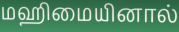
மஹிமையினால்